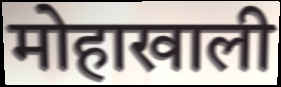
मोहाखाली